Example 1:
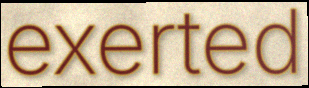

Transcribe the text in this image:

exerted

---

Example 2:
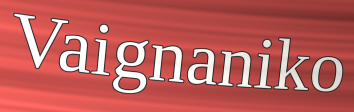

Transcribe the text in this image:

Vaignaniko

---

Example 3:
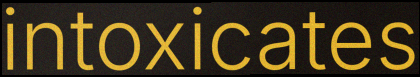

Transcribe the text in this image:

intoxicates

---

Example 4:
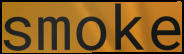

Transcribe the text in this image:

smoke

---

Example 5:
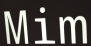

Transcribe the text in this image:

Mim